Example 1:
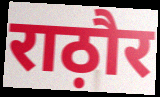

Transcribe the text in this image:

राठ़ौर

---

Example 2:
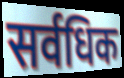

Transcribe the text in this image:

सर्वधिक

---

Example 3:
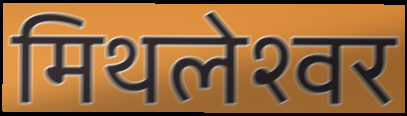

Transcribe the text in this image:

मिथलेश्वर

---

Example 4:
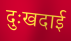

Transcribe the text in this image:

दुःखदाई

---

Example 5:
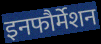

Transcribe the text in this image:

इनफौर्मेशन